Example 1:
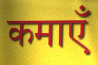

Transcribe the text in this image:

कमाएँ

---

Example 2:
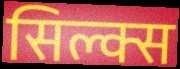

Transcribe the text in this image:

सिल्क्स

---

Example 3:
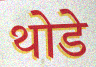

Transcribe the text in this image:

थोडे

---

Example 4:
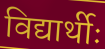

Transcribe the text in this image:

विद्यार्थीः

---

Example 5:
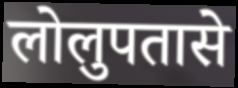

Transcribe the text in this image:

लोलुपतासे